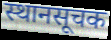
स्थानसूचक